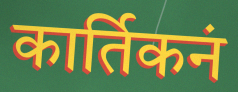
कार्तिकनं